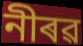
নীৰৱ